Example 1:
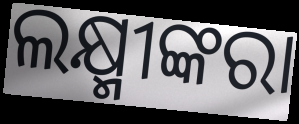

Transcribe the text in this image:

ଲକ୍ଷ୍ମୀଙ୍କରା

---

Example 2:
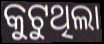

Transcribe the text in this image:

କୁଟୁଥିଲା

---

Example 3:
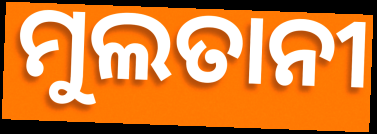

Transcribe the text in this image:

ମୁଲତାନୀ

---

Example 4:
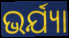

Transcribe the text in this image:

ଭର୍ଯ୍ୟା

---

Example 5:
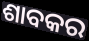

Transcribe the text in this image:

ଶାବକର